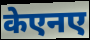
केएनए